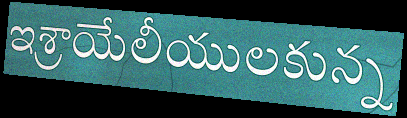
ఇశ్రాయేలీయులకున్న